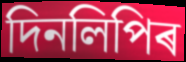
দিনলিপিৰ